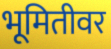
भूमितीवर